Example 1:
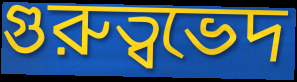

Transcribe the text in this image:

গুরুত্বভেদ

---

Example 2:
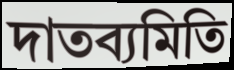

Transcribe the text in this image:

দাতব্যমিতি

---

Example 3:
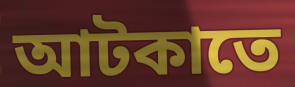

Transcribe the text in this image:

আটকাতে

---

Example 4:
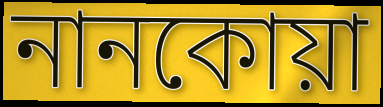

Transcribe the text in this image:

নানকোয়া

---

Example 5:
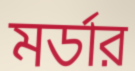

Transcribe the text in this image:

মর্ডার